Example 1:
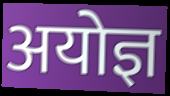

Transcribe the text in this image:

अयोज्ञ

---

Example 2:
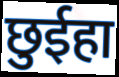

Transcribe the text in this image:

छुईहा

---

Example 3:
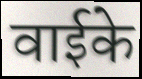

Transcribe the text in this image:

वाईके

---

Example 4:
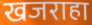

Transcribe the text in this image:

खजराहा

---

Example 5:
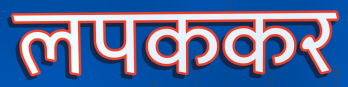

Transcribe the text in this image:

लपककर